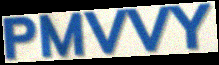
PMVVY